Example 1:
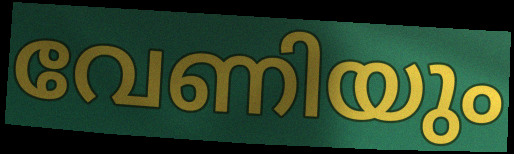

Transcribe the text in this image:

വേണിയും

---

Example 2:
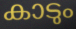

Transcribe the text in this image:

കാടും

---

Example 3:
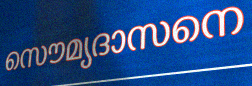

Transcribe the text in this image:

സൌമ്യദാസനെ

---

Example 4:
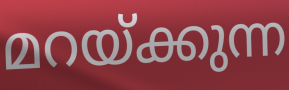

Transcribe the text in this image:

മറയ്ക്കുന്ന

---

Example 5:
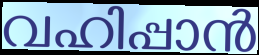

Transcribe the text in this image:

വഹിപ്പാൻ